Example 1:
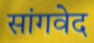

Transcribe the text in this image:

सांगवेद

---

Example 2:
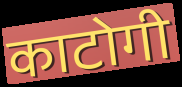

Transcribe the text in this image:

काटोगी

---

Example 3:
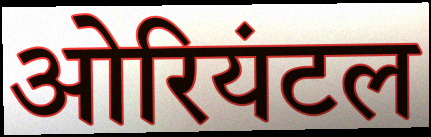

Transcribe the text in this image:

ओरियंटल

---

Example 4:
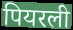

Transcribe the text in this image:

पियरली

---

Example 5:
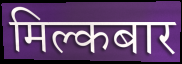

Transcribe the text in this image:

मिल्कबार